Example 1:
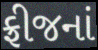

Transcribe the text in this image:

ફ્રીજનાં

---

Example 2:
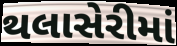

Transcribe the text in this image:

થલાસેરીમાં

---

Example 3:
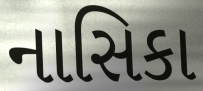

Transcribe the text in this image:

નાસિકા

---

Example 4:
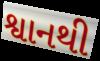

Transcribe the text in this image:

શ્વાનથી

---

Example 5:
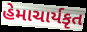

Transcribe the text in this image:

હેમાચાર્યકૃત